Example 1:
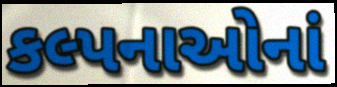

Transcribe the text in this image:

કલ્પનાઓનાં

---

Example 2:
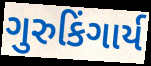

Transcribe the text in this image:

ગુરુકિંગાર્ય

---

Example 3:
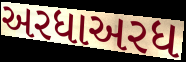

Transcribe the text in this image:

અરધાઅરધ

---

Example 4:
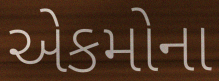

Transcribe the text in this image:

એકમોના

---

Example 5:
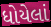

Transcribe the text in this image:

ધોયેલાં